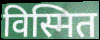
विस्मित